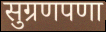
सुग्रणपणा